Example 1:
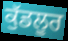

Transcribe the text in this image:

ਕੁੱਡਲੂਰ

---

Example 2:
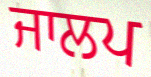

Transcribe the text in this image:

ਜਾਲਪ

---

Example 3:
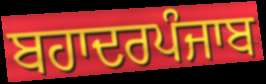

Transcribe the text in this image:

ਬਹਾਦਰਪੰਜਾਬ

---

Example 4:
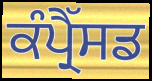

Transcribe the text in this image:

ਕੰਪ੍ਰੈੱਸਡ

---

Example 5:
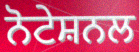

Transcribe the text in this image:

ਨੋਟੇਸ਼ਨਲ